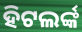
ହିଟଲର୍ଙ୍କ